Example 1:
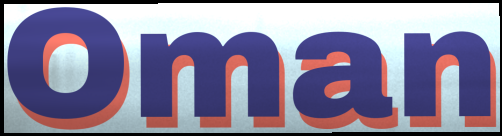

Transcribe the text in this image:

Oman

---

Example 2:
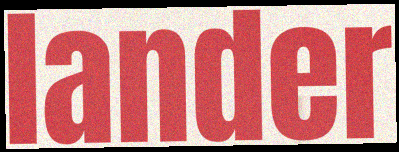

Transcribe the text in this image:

lander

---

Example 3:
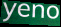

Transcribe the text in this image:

yeno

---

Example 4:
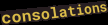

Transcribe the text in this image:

consolations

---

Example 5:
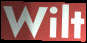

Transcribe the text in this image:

Wilt